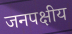
जनपक्षीय